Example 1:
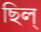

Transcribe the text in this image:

ছিল্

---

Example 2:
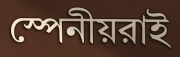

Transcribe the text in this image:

স্পেনীয়রাই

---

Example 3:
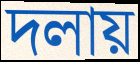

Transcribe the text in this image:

দলায়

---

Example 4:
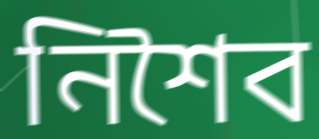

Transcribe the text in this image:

নিশৈব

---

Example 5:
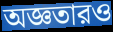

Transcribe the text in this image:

অজ্ঞতারও